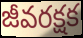
జీవరక్షక